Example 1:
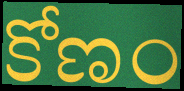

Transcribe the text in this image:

కోణం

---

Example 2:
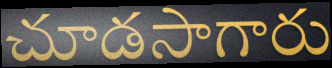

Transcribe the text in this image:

చూడసాగారు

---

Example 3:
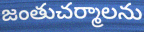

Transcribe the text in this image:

జంతుచర్మాలను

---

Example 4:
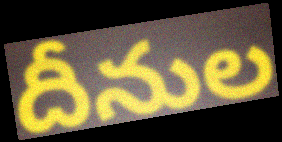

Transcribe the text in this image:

దీనుల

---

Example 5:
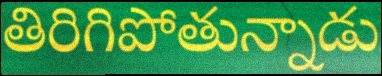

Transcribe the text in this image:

తిరిగిపోతున్నాడు